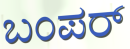
ಬಂಪರ್